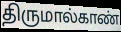
திருமால்காண்